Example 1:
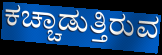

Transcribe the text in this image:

ಕಚ್ಚಾಡುತ್ತಿರುವ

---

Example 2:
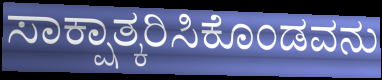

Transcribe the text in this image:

ಸಾಕ್ಷಾತ್ಕರಿಸಿಕೊಂಡವನು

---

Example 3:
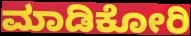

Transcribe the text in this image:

ಮಾಡಿಕೋರಿ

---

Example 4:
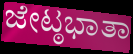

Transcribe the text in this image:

ಜೇಟ್ಠಭಾತಾ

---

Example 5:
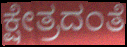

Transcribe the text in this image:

ಕ್ಷೇತ್ರದಂತೆ